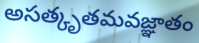
అసత్కృతమవజ్ఞాతం